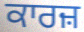
ਕਾਰਜ਼